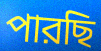
পারছি